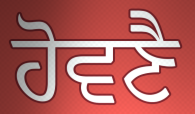
ਹੋਵਣੈ